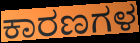
ಕಾರಣಗಳ